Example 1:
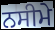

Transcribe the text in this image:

ਨਸੀਮੇ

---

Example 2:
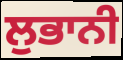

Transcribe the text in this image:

ਲੁਭਾਨੀ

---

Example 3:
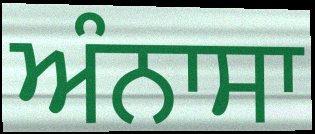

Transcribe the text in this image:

ਅੰਨਾਸਾ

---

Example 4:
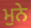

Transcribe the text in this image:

ਮੁਨੇ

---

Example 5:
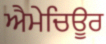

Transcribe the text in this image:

ਐਮੇਚਿਊਰ